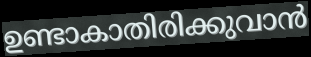
ഉണ്ടാകാതിരിക്കുവാൻ